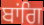
ਬਾਂਗਿ